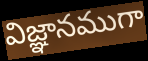
విజ్ఞానముగా